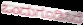
ಒಂದುಗೂಡಿಸಿದೆ